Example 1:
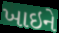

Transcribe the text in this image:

ખાઇને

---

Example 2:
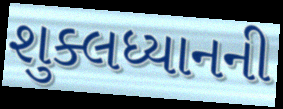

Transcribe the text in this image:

શુક્લધ્યાનની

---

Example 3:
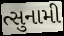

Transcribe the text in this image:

ત્સુનામી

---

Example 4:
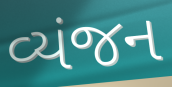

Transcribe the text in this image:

વ્યંજન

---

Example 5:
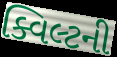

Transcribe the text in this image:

ક્વિલ્ટની